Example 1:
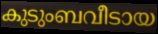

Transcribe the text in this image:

കുടുംബവീടായ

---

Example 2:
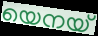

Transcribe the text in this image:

യെനയ്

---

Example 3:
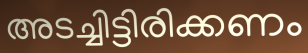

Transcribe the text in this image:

അടച്ചിട്ടിരിക്കണം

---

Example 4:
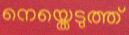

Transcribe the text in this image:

നെയ്തെടുത്ത്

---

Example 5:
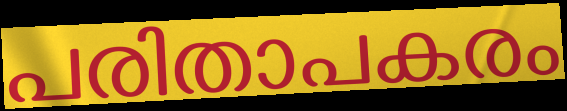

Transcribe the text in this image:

പരിതാപകരം